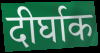
दीर्घाक